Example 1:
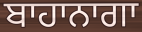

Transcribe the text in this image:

ਬਾਹਾਨਾਗਾ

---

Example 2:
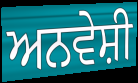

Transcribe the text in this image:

ਅਨਵੇਸ਼ੀ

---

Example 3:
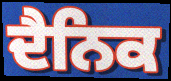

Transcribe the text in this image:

ਦੈਨਿਕ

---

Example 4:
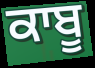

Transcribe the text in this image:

ਕਾਬੂ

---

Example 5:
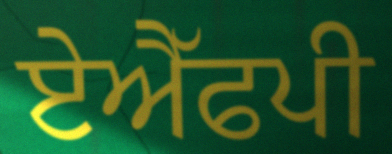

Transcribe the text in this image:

ਏਐੱਫਪੀ